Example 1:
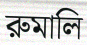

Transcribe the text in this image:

রুমালি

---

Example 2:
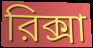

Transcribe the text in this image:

রিক্সা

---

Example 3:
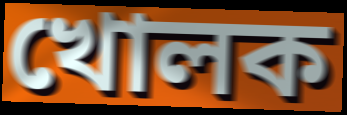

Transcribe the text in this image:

খোলক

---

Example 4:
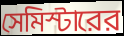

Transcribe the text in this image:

সেমিস্টারের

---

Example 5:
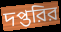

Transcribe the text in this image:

দপ্তরির